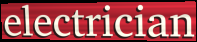
electrician